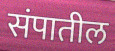
संपातील